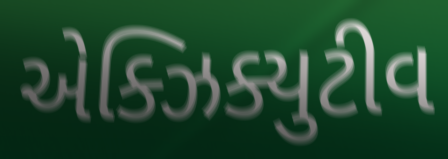
એક્ઝિક્યુટીવ